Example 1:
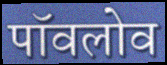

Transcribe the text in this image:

पॉवलोव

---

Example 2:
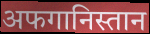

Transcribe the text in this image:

अफगानिस्तान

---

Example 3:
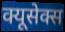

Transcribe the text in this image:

क्यूसेक्स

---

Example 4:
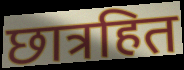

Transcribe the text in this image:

छात्रहित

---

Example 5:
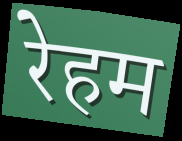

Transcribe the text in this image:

रेहम